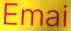
Emai